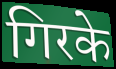
गिरके